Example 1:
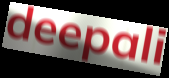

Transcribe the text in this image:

deepali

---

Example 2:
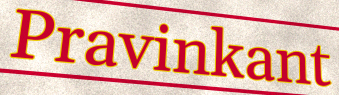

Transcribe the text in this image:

Pravinkant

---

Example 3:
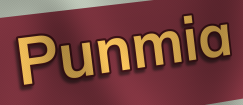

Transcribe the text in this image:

Punmia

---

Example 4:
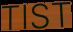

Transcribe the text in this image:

TIST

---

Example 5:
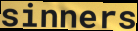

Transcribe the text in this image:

sinners